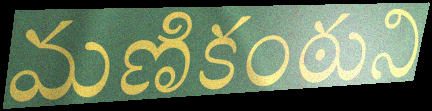
మణికంఠుని